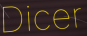
Dicer